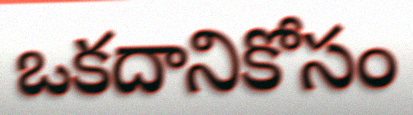
ఒకదానికోసం